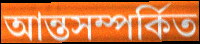
আন্তসম্পর্কিত